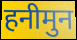
हनीमुन